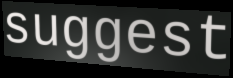
suggest